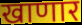
खाणार